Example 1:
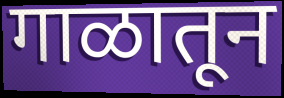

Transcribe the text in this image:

गाळातून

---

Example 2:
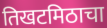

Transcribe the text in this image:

तिखटमिठाचा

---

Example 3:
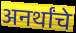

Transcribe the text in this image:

अनर्थांचे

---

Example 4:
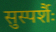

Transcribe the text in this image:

सुस्पर्शैः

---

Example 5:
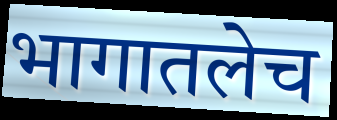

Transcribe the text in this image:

भागातलेच